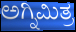
ಅಗ್ನಿಮಿತ್ರ